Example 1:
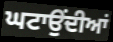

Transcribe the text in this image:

ਘਟਾਉਂਦੀਆਂ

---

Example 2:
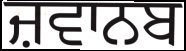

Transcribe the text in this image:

ਜ਼ਵਾਨਬ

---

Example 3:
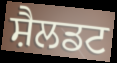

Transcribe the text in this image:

ਸ਼ੈਲਡਟ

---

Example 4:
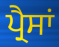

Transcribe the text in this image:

ਪ੍ਰੈਸਾਂ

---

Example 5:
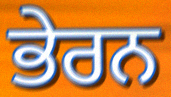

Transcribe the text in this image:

ਭੇਰਨ